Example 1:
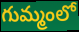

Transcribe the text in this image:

గుమ్మంలో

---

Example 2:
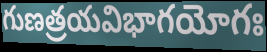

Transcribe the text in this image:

గుణత్రయవిభాగయోగః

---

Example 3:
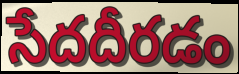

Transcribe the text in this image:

సేదదీరడం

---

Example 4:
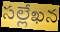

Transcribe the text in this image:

సల్లేఖన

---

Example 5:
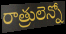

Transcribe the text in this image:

రాత్రులెన్నో